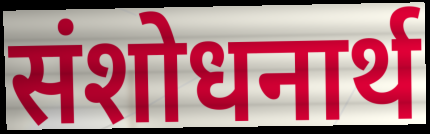
संशोधनार्थ